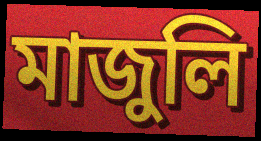
মাজুলি